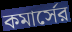
কমার্সের